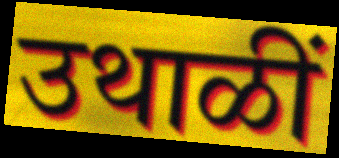
उथाळीं